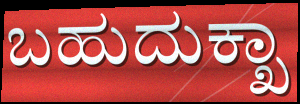
ಬಹುದುಕ್ಖಾ